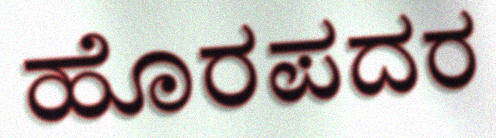
ಹೊರಪದರ